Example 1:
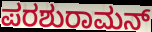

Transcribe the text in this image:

ಪರಶುರಾಮನ್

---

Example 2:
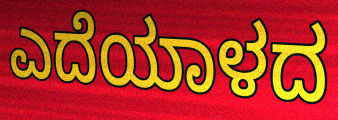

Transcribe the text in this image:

ಎದೆಯಾಳದ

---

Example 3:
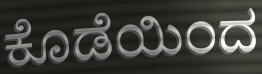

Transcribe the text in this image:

ಕೊಡೆಯಿಂದ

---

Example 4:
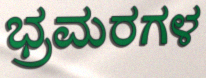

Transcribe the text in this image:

ಭ್ರಮರಗಳ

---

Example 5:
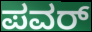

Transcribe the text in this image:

ಪವರ್